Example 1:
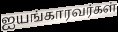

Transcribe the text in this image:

ஐயங்காரவர்கள்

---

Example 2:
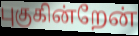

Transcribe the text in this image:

புகுகின்றேன்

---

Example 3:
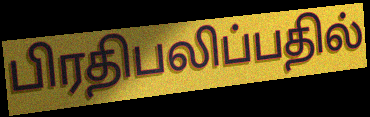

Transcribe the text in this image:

பிரதிபலிப்பதில்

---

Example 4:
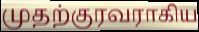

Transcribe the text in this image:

முதற்குரவராகிய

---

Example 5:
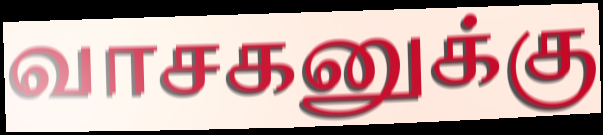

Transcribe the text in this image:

வாசகனுக்கு